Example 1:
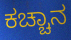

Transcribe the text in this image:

ಕಚ್ಚಾನ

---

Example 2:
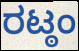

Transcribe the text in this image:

ರಟ್ಠಂ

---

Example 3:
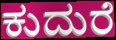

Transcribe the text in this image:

ಕುದುರೆ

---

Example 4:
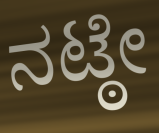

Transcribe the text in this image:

ನಟ್ಠೇ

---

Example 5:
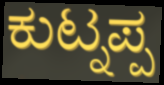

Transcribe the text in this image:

ಕುಟ್ನಪ್ಪ